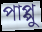
পাপ্পু